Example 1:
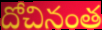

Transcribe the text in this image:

దోచినంత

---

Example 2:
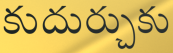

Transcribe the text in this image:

కుదుర్చుకు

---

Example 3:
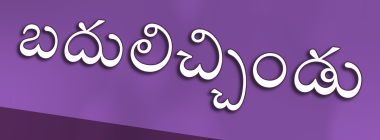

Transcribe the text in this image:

బదులిచ్చిండు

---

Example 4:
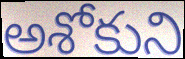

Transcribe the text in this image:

అశోకుని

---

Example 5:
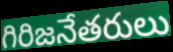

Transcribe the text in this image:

గిరిజనేతరులు